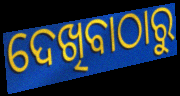
ଦେଖିବାଠାରୁ